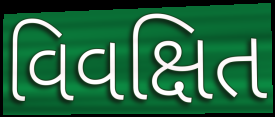
વિવક્ષિત